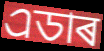
এডাৰ